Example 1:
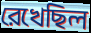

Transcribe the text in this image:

রেখেছিল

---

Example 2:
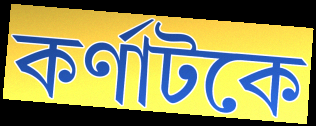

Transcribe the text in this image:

কর্ণাটকে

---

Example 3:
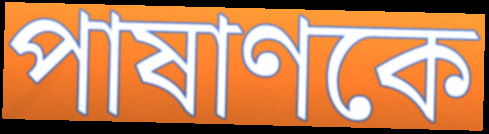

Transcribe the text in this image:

পাষাণকে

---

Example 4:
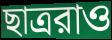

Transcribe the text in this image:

ছাত্ররাও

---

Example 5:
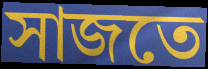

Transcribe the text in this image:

সাজতে